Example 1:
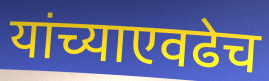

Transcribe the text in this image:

यांच्याएवढेच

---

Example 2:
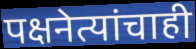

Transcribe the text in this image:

पक्षनेत्यांचाही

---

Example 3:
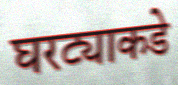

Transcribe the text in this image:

घरट्याकडे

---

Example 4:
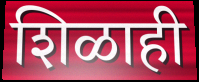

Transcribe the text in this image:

शिळाही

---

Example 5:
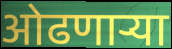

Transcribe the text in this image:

ओढणार्‍या